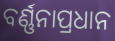
ବର୍ଣ୍ଣନାପ୍ରଧାନ